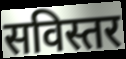
सविस्तर